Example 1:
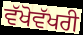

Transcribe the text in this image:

ਵੱਖੋਵੱਖਰੀ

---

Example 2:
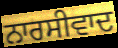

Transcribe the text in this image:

ਨਾਰਸੀਵਾਦ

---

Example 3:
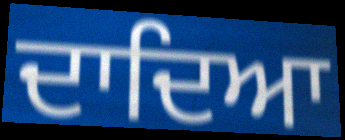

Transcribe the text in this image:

ਦਾਦਿਆ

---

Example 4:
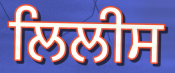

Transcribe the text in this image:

ਲਿਲੀਸ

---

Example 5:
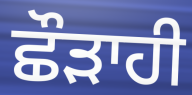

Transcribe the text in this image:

ਛੌੜਾਹੀ